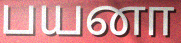
பயனா